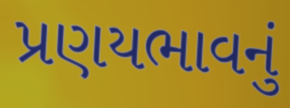
પ્રણયભાવનું